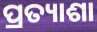
ପ୍ରତ୍ୟାଶା